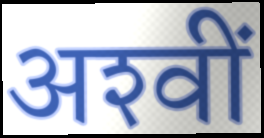
अश्वीं